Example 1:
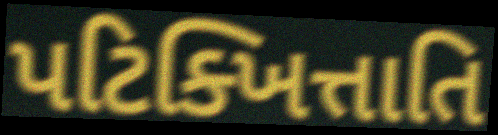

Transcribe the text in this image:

પટિક્ખિત્તાતિ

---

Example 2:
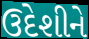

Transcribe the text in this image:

ઉદેશીને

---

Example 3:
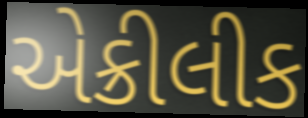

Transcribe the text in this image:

એક્રીલીક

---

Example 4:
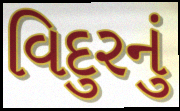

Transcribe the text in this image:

વિદુરનું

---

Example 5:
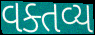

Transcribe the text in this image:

વક્તવ્ય